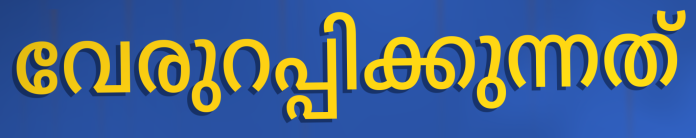
വേരുറപ്പിക്കുന്നത്